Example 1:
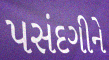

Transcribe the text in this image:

પસંદગીને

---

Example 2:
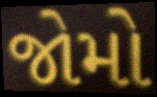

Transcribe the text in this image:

જોમો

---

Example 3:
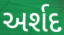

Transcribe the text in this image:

અર્શદ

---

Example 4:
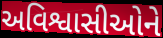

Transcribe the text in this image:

અવિશ્વાસીઓને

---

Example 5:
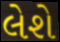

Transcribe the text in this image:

લેશે